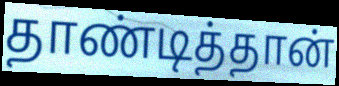
தாண்டித்தான்